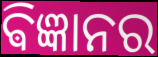
ଵିଜ୍ଞାନର